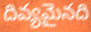
దివ్యమైనది